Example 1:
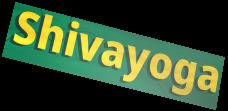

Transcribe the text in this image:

Shivayoga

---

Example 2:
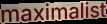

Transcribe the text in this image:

maximalist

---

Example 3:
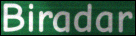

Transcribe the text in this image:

Biradar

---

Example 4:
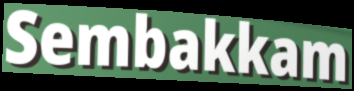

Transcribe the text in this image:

Sembakkam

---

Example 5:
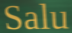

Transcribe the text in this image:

Salu